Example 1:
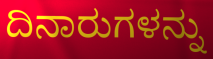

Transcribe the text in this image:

ದಿನಾರುಗಳನ್ನು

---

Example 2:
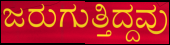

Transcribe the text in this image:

ಜರುಗುತ್ತಿದ್ದವು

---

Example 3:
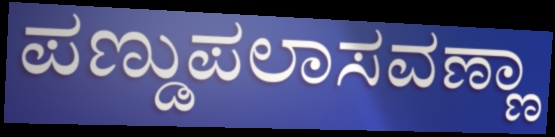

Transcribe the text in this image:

ಪಣ್ಡುಪಲಾಸವಣ್ಣಾ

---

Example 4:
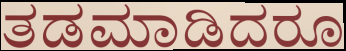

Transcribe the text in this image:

ತಡಮಾಡಿದರೂ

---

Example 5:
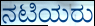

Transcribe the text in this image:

ನಟಿಯರು